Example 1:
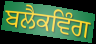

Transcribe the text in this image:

ਬਲੈਕਵਿੰਗ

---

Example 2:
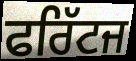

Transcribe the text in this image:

ਫਰਿੱਟਜ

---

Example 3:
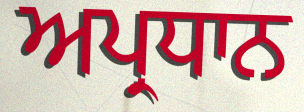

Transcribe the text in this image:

ਅਪ੍ਰਧਾਨ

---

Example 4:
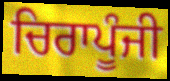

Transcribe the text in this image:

ਚਿਰਾਪੂੰਜੀ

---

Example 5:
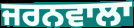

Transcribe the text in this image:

ਜਰਨਵਾਲਾ